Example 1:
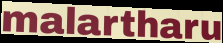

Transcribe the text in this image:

malartharu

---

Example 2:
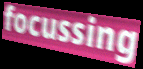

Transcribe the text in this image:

focussing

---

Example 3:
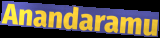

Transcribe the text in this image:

Anandaramu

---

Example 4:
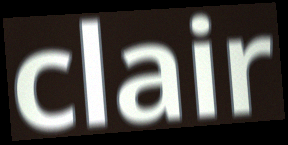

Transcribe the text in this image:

clair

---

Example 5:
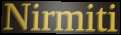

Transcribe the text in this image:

Nirmiti